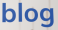
blog